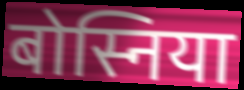
बोस्निया